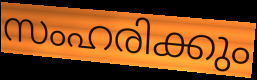
സംഹരിക്കും